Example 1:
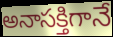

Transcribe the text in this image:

అనాసక్తిగానే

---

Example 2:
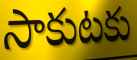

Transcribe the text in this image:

సాకుటకు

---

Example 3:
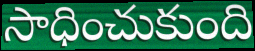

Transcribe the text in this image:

సాధించుకుంది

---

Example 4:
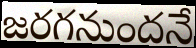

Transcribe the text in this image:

జరగనుందనే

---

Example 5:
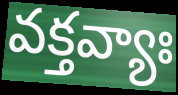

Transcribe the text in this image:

వక్తవ్యాః